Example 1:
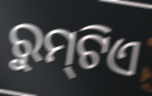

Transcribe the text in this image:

ରୁମ୍‌ଟିଏ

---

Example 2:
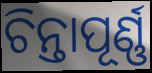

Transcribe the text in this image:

ଚିନ୍ତାପୂର୍ଣ୍ଣ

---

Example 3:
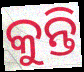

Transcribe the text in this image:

କୁନ୍ତି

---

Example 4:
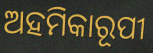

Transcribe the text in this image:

ଅହମିକାରୂପୀ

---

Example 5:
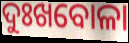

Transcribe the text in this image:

ଦୁଃଖବୋଳା